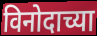
विनोदाच्या